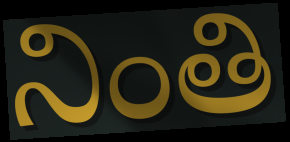
నింతి